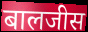
बालजीस